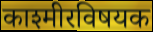
काश्मीरविषयक